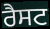
ਰੈਸਟ